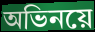
অভিনয়ে